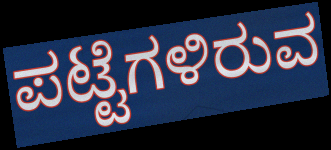
ಪಟ್ಟೆಗಳಿರುವ